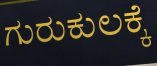
ಗುರುಕುಲಕ್ಕೆ